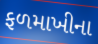
ફળમાખીના